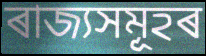
ৰাজ্যসমূহৰ